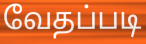
வேதப்படி